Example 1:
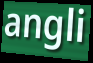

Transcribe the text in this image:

angli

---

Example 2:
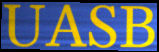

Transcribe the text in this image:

UASB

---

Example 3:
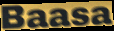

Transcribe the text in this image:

Baasa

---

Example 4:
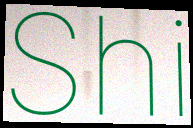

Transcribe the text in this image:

Shi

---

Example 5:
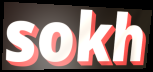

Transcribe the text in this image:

sokh